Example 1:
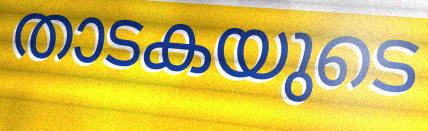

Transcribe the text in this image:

താടകയുടെ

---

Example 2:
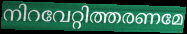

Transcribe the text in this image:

നിറവേറ്റിത്തരണമേ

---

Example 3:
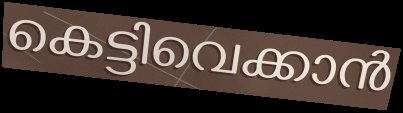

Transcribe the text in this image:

കെട്ടിവെക്കാൻ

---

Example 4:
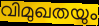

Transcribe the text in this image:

വിമുഖതയും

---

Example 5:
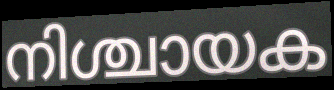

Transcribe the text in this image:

നിശ്ചായക